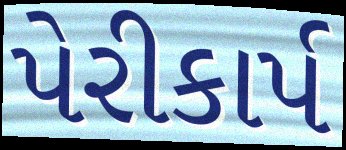
પેરીકાર્પ